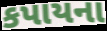
કપાયના